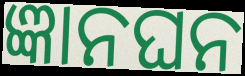
ଜ୍ଞାନଘନ